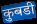
कुबडी